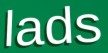
lads